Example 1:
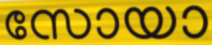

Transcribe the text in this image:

സോയാ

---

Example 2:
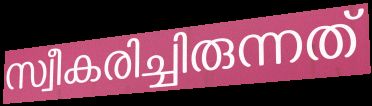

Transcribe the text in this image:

സ്വീകരിച്ചിരുന്നത്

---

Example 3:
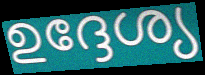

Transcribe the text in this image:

ഉദ്ദേശ്യ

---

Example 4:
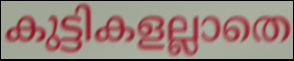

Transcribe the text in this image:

കുട്ടികളല്ലാതെ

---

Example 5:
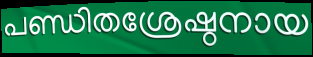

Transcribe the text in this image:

പണ്ഡിതശ്രേഷ്ഠനായ